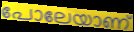
പോലേയാണ്